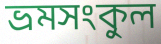
ভ্রমসংকুল